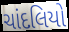
ચાંદલિયો